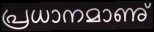
പ്രധാനമാണു്